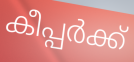
കീപ്പർക്ക്